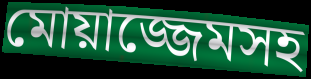
মোয়াজ্জেমসহ